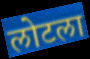
लोटला